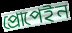
প্রোপেইন